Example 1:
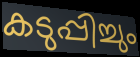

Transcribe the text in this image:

കടുപ്പിച്ചും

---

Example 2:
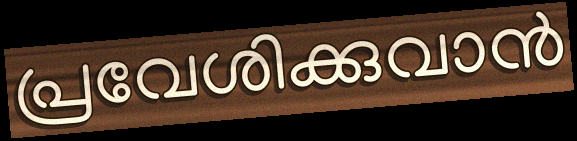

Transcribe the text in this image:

പ്രവേശിക്കുവാൻ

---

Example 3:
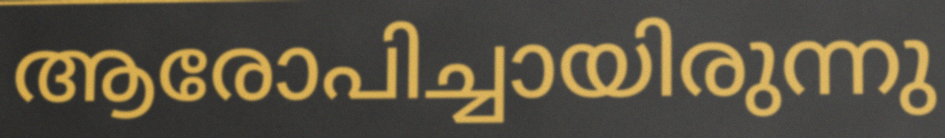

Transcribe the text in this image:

ആരോപിച്ചായിരുന്നു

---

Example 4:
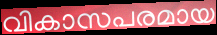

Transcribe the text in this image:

വികാസപരമായ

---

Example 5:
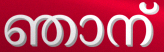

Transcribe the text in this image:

ഞാന്